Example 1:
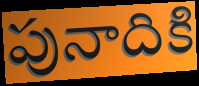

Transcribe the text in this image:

పునాదికి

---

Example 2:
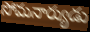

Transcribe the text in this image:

సోమనార్యుడు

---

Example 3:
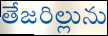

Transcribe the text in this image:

తేజరిల్లును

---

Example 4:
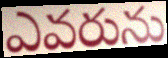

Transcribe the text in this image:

ఎవరును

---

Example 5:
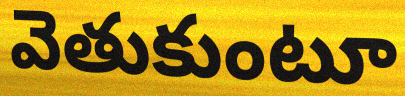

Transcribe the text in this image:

వెతుకుంటూ